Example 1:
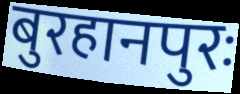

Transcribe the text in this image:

बुरहानपुरः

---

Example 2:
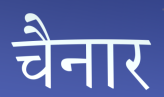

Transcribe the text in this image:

चैनार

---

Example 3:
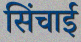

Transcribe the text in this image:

सिंचाई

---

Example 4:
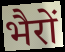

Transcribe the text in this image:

भैरों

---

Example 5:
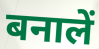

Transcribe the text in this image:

बनालें